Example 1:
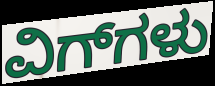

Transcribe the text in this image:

ವಿಗ್‌ಗಳು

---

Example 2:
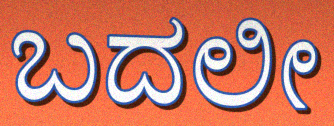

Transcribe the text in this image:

ಬದಲೀ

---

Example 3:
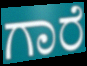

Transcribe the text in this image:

ಗಾರೆ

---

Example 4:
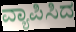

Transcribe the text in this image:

ವ್ಯಾಪಿಸಿದ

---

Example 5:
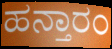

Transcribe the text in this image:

ಹನ್ತಾರಂ